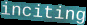
inciting